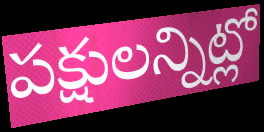
పక్షులన్నిట్లో